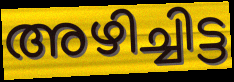
അഴിച്ചിട്ട